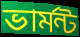
ভার্মন্ট